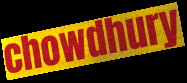
chowdhury